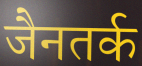
जैनतर्क